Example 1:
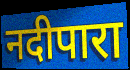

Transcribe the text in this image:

नदीपारा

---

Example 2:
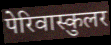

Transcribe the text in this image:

पेरिवास्कुलर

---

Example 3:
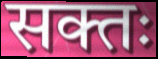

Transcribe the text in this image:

सक्तः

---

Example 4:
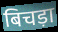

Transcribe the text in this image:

बिचड़ा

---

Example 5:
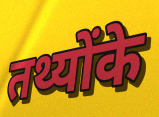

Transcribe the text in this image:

तथ्योंके